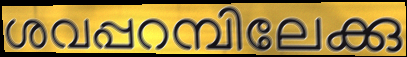
ശവപ്പറമ്പിലേക്കു